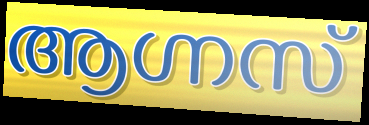
ആഗ്നസ്